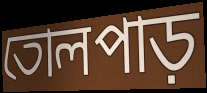
তোলপাড়